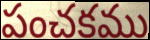
పంచకము